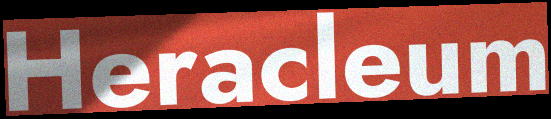
Heracleum